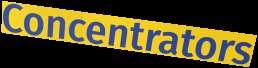
Concentrators